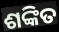
ଶଙ୍କିତ